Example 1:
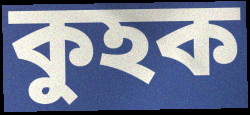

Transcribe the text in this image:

কুহক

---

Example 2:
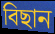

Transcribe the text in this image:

বিছান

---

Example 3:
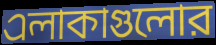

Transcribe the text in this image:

এলাকাগুলোর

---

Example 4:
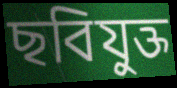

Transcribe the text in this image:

ছবিযুক্ত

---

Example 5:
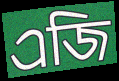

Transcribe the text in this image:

এজি